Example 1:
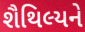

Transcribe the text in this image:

શૈથિલ્યને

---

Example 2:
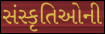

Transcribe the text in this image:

સંસ્કૃતિઓની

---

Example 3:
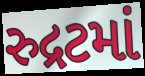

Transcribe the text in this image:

રુદ્રટમાં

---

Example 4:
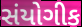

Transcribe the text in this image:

સંયોગીક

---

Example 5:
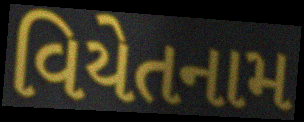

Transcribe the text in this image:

વિયેતનામ